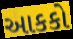
આકકો